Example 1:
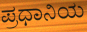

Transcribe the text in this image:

ಪ್ರಧಾನಿಯ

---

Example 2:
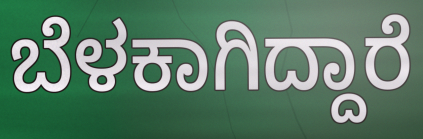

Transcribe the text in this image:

ಬೆಳಕಾಗಿದ್ದಾರೆ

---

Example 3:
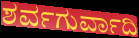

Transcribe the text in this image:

ಶರ್ವಗುರ್ವಾದಿ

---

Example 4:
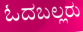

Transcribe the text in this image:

ಓದಬಲ್ಲರು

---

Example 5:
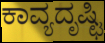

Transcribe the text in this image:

ಕಾವ್ಯದೃಷ್ಟಿ